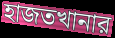
হাজতখানার